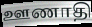
ஊணாதி